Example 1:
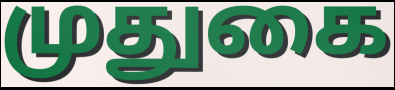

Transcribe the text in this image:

முதுகை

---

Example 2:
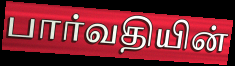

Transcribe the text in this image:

பார்வதியின்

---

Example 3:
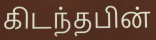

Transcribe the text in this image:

கிடந்தபின்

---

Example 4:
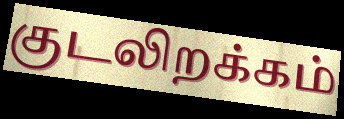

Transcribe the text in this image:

குடலிறக்கம்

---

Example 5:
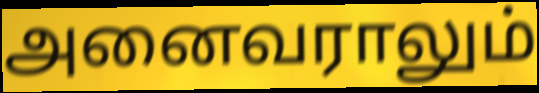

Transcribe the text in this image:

அனைவராலும்